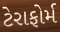
ટેરાફોર્મ